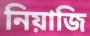
নিয়াজি